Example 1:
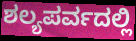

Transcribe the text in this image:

ಶಲ್ಯಪರ್ವದಲ್ಲಿ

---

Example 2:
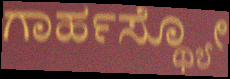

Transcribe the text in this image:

ಗಾರ್ಹಸ್ಥ್ಯೋ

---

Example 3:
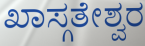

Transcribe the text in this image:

ಖಾಸ್ಗತೇಶ್ವರ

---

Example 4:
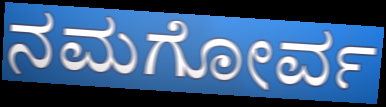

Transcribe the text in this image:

ನಮಗೋರ್ವ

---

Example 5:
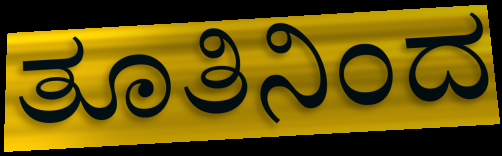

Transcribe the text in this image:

ತೂತಿನಿಂದ